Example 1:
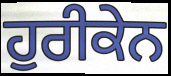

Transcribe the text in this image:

ਹੁਰੀਕੇਨ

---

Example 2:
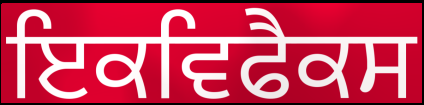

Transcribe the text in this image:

ਇਕਵਿਫੈਕਸ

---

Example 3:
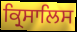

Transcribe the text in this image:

ਕ੍ਰਿਸਾਲਿਸ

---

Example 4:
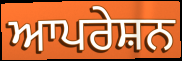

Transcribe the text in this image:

ਆਪਰੇਸ਼ਨ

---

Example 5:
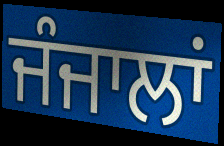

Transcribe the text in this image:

ਜੰਜਾਲਾਂ